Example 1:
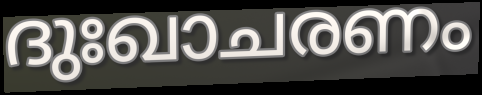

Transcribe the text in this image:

ദുഃഖാചരണം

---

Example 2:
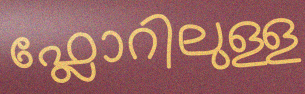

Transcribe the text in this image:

ഫ്ലോറിലുള്ള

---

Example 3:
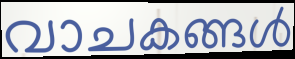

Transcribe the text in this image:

വാചകങ്ങൾ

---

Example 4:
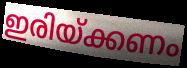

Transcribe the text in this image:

ഇരിയ്ക്കണം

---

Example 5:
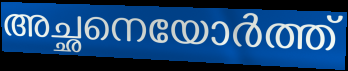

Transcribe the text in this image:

അച്ഛനെയോർത്ത്